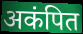
अकंपित